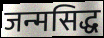
जन्मसिद्ध